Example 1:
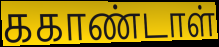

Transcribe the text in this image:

ககாண்டாள்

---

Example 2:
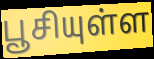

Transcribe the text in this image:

பூசியுள்ள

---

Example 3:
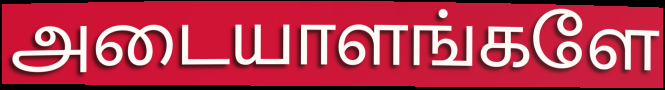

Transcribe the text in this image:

அடையாளங்களே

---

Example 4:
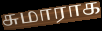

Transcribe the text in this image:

சுமாராக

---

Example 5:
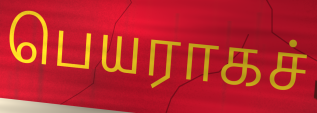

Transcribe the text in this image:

பெயராகச்